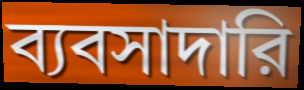
ব্যবসাদারি